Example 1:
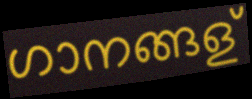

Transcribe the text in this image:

ഗാനങ്ങള്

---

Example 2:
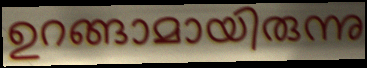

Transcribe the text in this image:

ഉറങ്ങാമായിരുന്നു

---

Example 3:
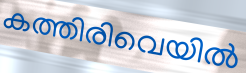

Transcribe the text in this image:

കത്തിരിവെയിൽ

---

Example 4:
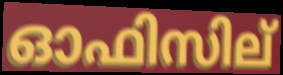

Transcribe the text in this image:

ഓഫിസില്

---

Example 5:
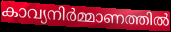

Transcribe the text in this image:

കാവ്യനിർമ്മാണത്തിൽ